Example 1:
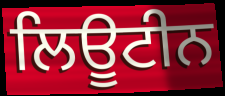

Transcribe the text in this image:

ਲਿਊਟੀਨ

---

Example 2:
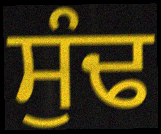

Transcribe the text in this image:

ਸੁੰਢ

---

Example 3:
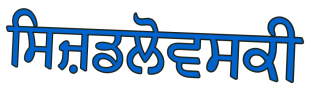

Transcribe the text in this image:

ਸਿਜ਼ਡਲੋਵਸਕੀ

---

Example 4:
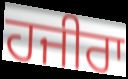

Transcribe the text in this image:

ਹਜੀਰਾ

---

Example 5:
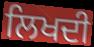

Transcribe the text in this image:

ਲਿਖਦੀ